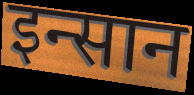
इन्सान